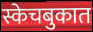
स्केचबुकात